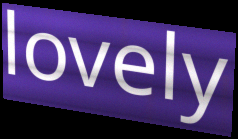
lovely